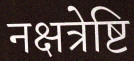
नक्षत्रेष्टि